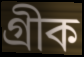
গ্ৰীক